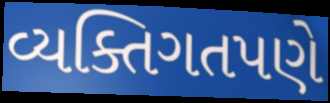
વ્યક્તિગતપણે